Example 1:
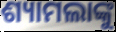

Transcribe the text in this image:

ଶ୍ୟାମଲାଙ୍କୁ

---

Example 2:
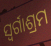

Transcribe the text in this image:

ସ୍ୱର୍ଗାଶ୍ରମ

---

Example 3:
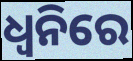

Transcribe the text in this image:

ଧ୍ୱନିରେ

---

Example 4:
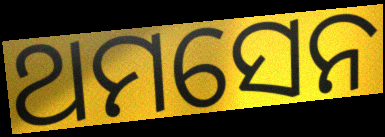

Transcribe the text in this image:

ଥମସେନ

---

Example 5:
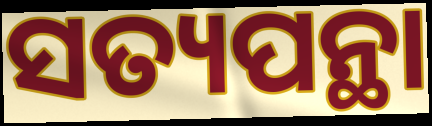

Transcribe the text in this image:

ସତ୍ୟପନ୍ଥା